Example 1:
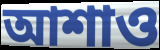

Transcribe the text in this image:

আশাও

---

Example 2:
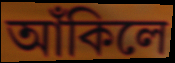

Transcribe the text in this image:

আঁকিলে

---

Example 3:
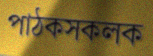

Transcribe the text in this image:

পাঠকসকলক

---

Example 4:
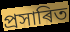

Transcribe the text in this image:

প্ৰসাৰিত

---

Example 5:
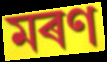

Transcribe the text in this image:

মৰণ